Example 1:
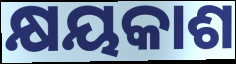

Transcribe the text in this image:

କ୍ଷୟକାଶ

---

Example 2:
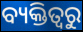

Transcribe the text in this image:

ବ୍ୟକ୍ତିତ୍ୱରୁ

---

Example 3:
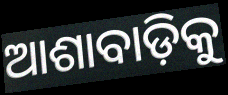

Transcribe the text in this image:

ଆଶାବାଡ଼ିକୁ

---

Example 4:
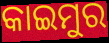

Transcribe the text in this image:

କାଇମୁର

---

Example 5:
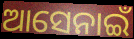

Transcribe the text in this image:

ଆସେନାଇଁ